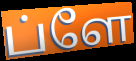
ப்ளே